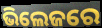
ଭିଲେଜରେ